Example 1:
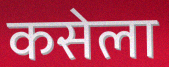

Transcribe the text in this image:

कसेला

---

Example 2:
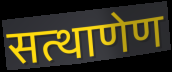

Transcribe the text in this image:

सत्थाणेण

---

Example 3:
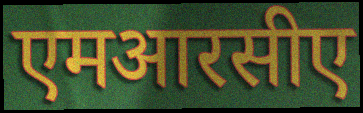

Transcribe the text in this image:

एमआरसीए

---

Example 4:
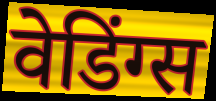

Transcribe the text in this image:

वेडिंग्स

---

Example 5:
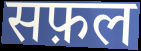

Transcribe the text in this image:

सफ़ल